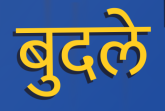
बुदले